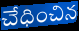
చేధించిన